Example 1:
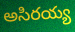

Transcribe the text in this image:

అసిరయ్య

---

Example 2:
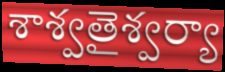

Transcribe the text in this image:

శాశ్వతైశ్వర్యా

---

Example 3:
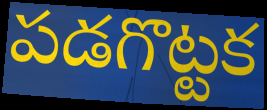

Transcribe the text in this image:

పడగొట్టక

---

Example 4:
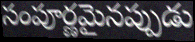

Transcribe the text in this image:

సంపూర్ణమైనప్పుడు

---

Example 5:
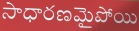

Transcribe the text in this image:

సాధారణమైపోయి